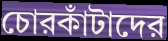
চোরকাঁটাদের